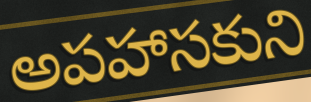
అపహాసకుని